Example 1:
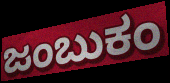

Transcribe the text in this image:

ಜಂಬುಕಂ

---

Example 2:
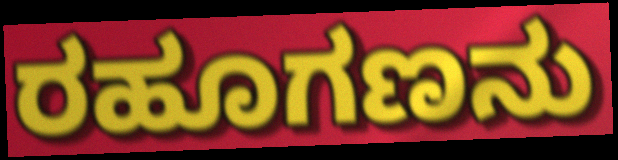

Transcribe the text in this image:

ರಹೂಗಣನು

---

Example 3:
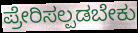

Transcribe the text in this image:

ಪ್ರೇರಿಸಲ್ಪಡಬೇಕು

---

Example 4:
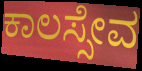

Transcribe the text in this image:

ಕಾಲಸ್ಸೇವ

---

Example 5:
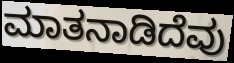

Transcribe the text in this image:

ಮಾತನಾಡಿದೆವು